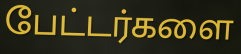
பேட்டர்களை